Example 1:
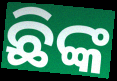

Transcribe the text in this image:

ଛିଙ୍କ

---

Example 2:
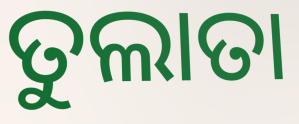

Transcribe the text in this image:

ତୁଲାତା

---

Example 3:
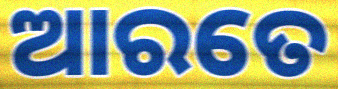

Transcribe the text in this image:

ଆରତେ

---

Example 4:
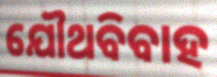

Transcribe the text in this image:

ଯୌଥବିବାହ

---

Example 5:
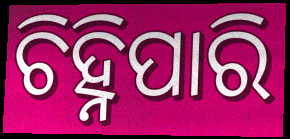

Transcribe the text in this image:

ଚିହ୍ନିପାରି